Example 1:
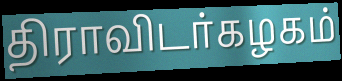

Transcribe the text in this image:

திராவிடர்கழகம்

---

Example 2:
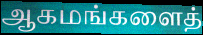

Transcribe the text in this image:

ஆகமங்களைத்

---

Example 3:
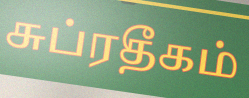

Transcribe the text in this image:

சுப்ரதீகம்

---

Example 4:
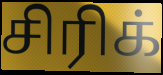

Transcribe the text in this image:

சிரிக்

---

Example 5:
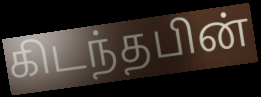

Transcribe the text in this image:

கிடந்தபின்